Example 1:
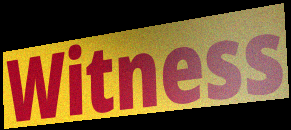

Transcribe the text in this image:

Witness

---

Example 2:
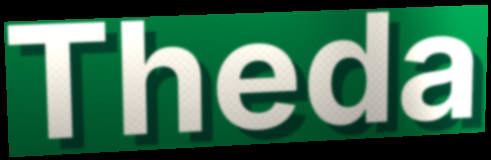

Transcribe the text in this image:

Theda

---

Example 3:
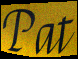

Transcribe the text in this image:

Pat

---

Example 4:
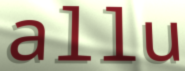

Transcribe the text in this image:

allu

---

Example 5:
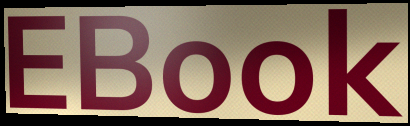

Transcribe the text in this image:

EBook